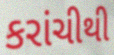
કરાંચીથી